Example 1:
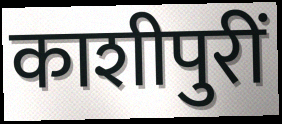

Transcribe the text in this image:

काशीपुरीं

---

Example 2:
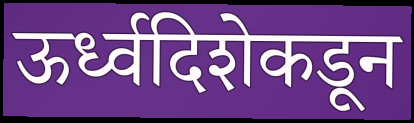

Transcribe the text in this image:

ऊर्ध्वदिशेकडून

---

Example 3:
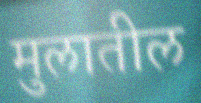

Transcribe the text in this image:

मुलातील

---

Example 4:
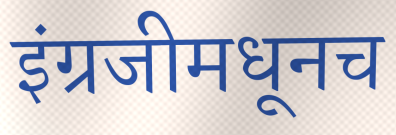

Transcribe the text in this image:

इंग्रजीमधूनच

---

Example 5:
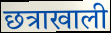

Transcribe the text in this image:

छत्राखाली